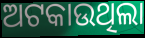
ଅଟକାଉଥିଲା